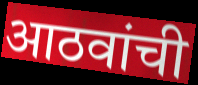
आठवांची